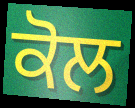
ਕੋਲ